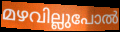
മഴവില്ലുപോൽ